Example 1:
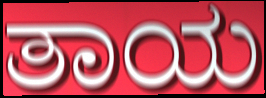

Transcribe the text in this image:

ತಾಯ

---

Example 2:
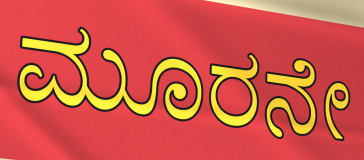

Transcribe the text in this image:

ಮೂರನೇ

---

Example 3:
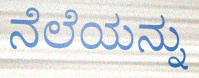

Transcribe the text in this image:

ನೆಲೆಯನ್ನು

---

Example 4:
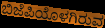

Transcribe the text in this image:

ಬಿಜೆಪಿಯೊಳಗಿರುವ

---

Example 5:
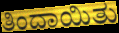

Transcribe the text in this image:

ತಿಂದಾಯಿತು